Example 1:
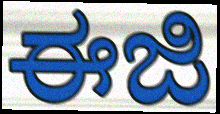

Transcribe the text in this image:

ಈಜಿ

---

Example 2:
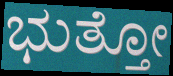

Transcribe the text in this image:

ಭುತ್ತೋ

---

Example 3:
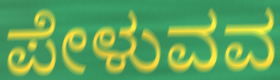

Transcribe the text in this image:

ಪೇಳುವವ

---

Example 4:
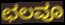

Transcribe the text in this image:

ಛಲವೂ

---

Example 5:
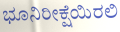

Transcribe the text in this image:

ಭೂನಿರೀಕ್ಷೆಯಿರಲಿ